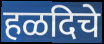
हळदिचे